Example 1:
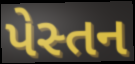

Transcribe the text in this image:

પેસ્તન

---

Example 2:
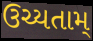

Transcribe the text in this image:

ઉચ્યતામ્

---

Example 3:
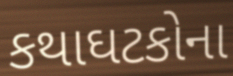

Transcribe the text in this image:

કથાઘટકોના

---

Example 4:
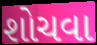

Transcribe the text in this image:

શોચવા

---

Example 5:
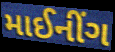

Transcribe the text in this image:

માઈનીંગ